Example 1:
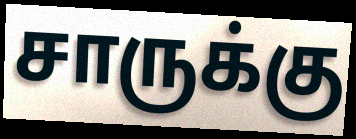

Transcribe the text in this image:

சாருக்கு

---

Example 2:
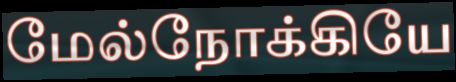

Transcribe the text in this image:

மேல்நோக்கியே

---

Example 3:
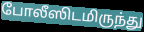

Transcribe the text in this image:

போலீஸிடமிருந்து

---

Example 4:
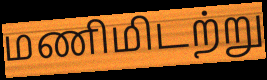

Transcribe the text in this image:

மணிமிடற்று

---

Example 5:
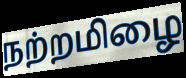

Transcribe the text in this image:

நற்றமிழை